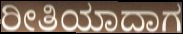
ರೀತಿಯಾದಾಗ